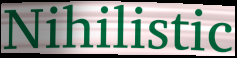
Nihilistic